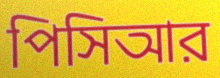
পিসিআর